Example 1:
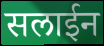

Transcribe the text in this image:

सलाईन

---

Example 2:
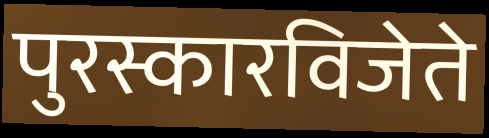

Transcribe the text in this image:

पुरस्कारविजेते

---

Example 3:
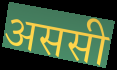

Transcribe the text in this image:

अससी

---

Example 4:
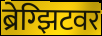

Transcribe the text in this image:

ब्रेग्झिटवर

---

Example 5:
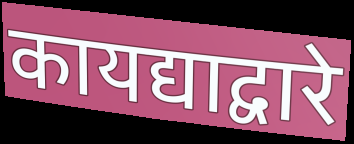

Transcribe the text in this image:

कायद्याद्वारे